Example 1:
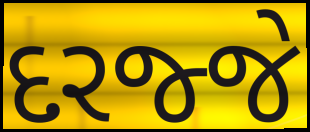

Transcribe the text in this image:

દરજ્જે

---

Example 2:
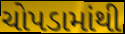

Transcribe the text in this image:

ચોપડામાંથી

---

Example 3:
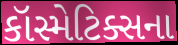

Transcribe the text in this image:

કૉસ્મેટિક્સના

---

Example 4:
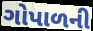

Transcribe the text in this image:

ગોપાળની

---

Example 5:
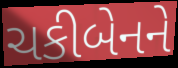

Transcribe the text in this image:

ચકીબેનને